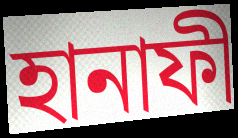
হানাফী